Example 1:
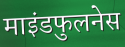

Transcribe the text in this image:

माइंडफुलनेस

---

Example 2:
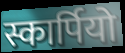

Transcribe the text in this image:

स्कार्पियो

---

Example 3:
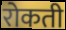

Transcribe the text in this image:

रोकती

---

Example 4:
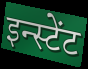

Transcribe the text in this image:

इन्स्टेंट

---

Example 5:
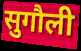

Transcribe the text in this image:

सुगौली